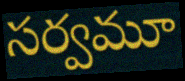
సర్వమూ